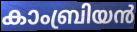
കാംബ്രിയൻ